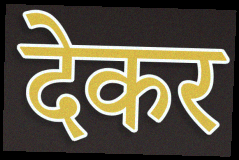
देकर